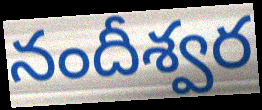
నందీశ్వర